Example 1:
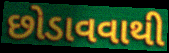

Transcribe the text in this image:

છોડાવવાથી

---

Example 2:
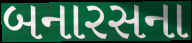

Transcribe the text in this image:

બનારસના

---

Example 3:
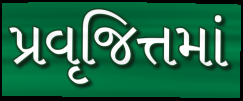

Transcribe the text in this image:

પ્રવૃજિત્તમાં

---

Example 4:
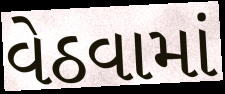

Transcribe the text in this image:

વેઠવામાં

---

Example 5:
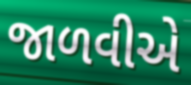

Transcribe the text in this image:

જાળવીએ